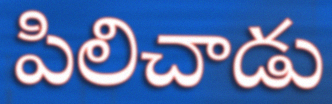
పిలిచాడు